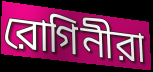
রোগিনীরা